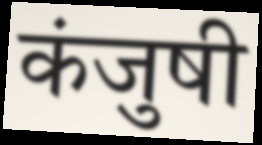
कंजुषी